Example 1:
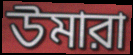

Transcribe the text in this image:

উমারা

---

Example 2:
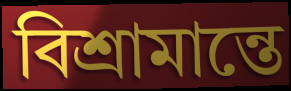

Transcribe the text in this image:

বিশ্রামান্তে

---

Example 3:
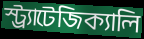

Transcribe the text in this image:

স্ট্র্যাটেজিক্যালি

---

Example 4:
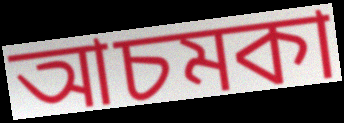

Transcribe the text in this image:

আচমকা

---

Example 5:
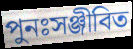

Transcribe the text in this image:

পুনঃসঞ্জীবিত